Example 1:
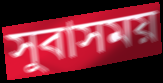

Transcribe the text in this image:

সুবাসময়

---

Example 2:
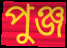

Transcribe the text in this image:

পুঞ্জ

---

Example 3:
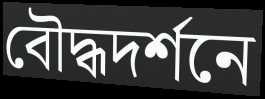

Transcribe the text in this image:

বৌদ্ধদর্শনে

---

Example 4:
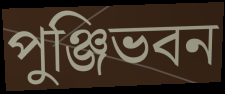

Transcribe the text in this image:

পুঞ্জিভবন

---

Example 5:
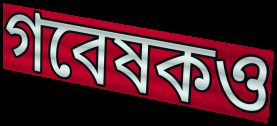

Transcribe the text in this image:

গবেষকও